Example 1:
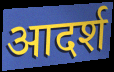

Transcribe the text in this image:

आदर्श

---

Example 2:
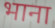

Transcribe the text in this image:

भाना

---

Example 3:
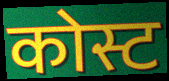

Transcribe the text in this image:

कोस्ट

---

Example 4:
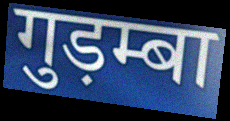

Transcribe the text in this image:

गुड़म्बा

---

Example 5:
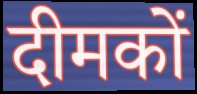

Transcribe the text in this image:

दीमकों